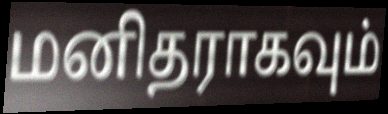
மனிதராகவும்